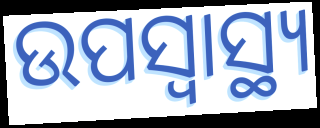
ଉପସ୍ୱାସ୍ଥ୍ୟ